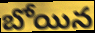
బోయిన